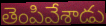
తెంపివేశాడు